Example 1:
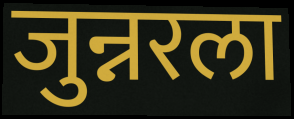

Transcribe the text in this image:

जुन्नरला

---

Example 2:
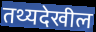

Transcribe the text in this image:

तथ्यदेखील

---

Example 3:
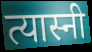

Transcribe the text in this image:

त्यास्नी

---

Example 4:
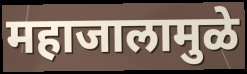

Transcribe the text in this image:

महाजालामुळे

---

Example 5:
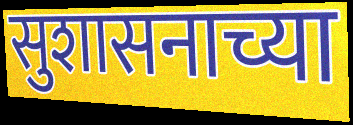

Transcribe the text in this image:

सुशासनाच्या